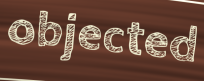
objected